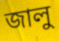
জালু